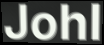
Johl